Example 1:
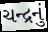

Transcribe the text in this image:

ચન્દ્રનું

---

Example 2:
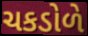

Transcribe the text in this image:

ચકડોળે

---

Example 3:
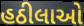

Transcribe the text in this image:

હઠીલાઓ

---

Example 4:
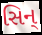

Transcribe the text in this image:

સિન્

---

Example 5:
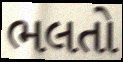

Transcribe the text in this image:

ભલતો